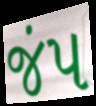
જંપ